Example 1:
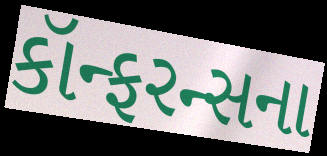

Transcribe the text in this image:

કૉન્ફરન્સના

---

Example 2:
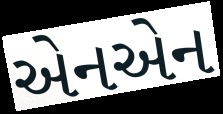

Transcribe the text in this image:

એનએન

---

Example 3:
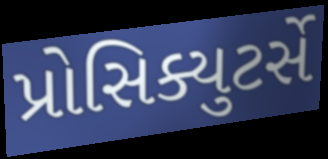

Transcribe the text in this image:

પ્રોસિક્યુટર્સે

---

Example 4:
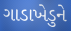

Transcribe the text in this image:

ગાડાખેડુને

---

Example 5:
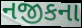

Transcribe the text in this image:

નજીકના